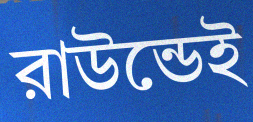
রাউন্ডেই